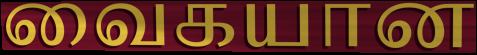
வைகயான